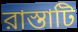
রাস্তাটি